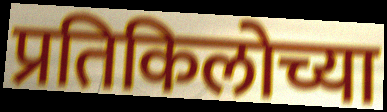
प्रतिकिलोच्या